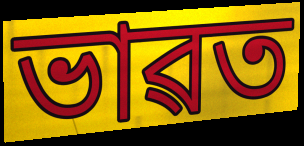
ভাৱত